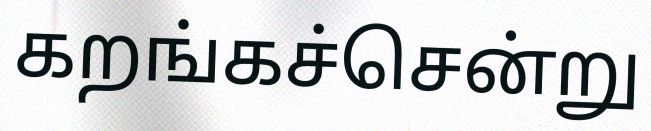
கறங்கச்சென்று